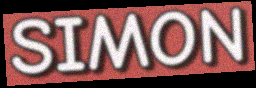
SIMON